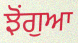
ਝੋਂਗੁਆ